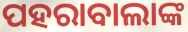
ପହରାବାଲାଙ୍କ